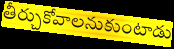
తీర్చుకోవాలనుకుంటాడు